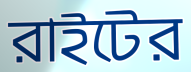
রাইটের